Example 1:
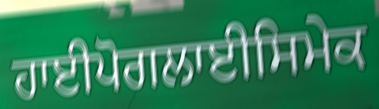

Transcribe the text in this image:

ਹਾਈਪੋਗਲਾਈਸਿਮੇਕ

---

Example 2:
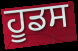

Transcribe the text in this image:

ਹੂਡਸ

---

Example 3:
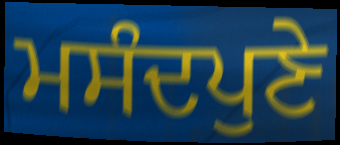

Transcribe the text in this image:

ਮਸੰਦਪੁਣੇ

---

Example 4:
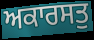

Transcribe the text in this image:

ਅਕਾਰਸਤੁ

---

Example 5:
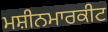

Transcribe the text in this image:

ਮਸ਼ੀਨਮਾਰਕੀਟ